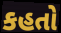
કહતો